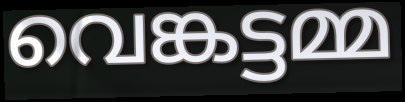
വെങ്കട്ടമ്മ